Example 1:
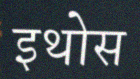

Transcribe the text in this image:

इथोस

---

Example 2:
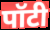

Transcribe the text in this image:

पॉटी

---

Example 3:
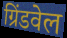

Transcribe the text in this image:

ग्रिंडवेल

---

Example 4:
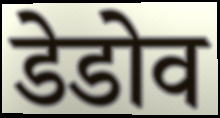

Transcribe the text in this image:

डेडोव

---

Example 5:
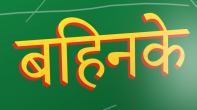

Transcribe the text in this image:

बहिनके